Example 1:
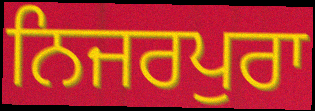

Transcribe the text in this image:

ਨਿਜਰਪੁਰਾ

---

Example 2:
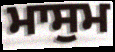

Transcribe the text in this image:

ਮਾਸੁਮ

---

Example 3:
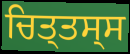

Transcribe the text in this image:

ਚਿਤ੍ਤਸ੍ਸ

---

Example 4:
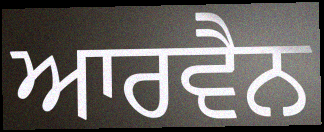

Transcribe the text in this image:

ਆਰਵੈਨ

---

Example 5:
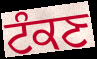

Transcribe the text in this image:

ਟੰਕਣ